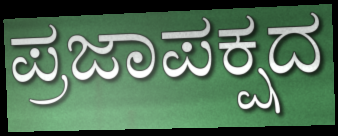
ಪ್ರಜಾಪಕ್ಷದ